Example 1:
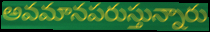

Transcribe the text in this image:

అవమానపరుస్తున్నారు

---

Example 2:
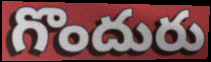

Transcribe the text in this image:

గొందురు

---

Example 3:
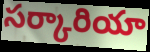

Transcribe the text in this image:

సర్కారియా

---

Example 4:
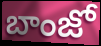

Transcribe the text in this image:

బాంజో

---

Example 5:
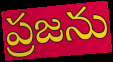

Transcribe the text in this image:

ప్రజను